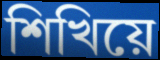
শিখিয়ে